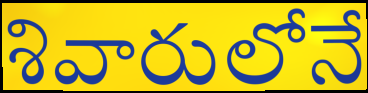
శివారులోనే